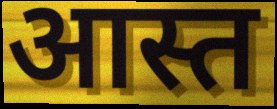
आस्त